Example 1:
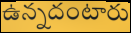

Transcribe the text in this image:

ఉన్నదంటారు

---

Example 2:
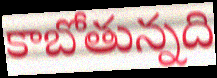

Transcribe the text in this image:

కాబోతున్నది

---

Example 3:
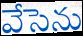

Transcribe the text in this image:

వేసెను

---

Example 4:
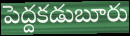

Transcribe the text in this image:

పెద్దకడుబూరు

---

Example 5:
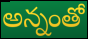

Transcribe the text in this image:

అన్నంతో